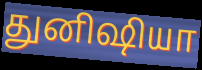
துனிஷியா